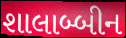
શાલાબ્બીન